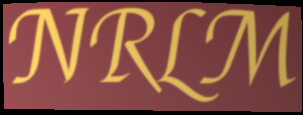
NRLM